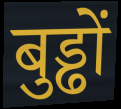
बुड्ढों